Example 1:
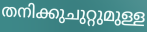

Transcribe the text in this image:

തനിക്കുചുറ്റുമുള്ള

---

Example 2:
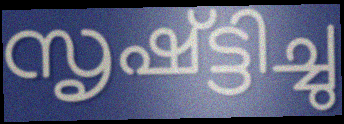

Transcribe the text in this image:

സൃഷ്ട്ടിച്ചു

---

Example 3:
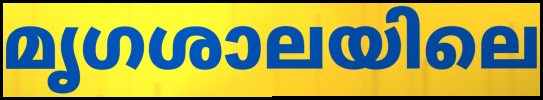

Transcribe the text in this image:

മൃഗശാലയിലെ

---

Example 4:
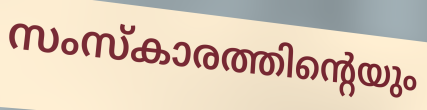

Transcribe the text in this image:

സംസ്കാരത്തിന്റെയും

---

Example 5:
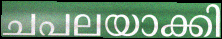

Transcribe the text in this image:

ചപലയാക്കി